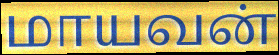
மாயவன்